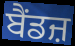
ਬੈਂਡਜ਼